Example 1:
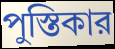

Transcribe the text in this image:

পুস্তিকার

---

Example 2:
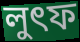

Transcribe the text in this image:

লুৎফ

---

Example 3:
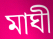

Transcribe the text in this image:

মাঘী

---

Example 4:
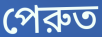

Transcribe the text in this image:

পেরুত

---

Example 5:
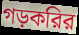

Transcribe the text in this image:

গড়করির